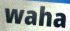
waha